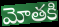
మోతకి